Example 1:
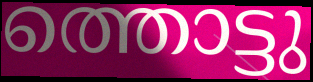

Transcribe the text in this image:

ത്തൊട്ടു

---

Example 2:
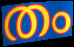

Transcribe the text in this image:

തം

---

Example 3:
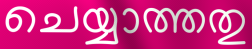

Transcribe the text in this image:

ചെയ്യാത്തതു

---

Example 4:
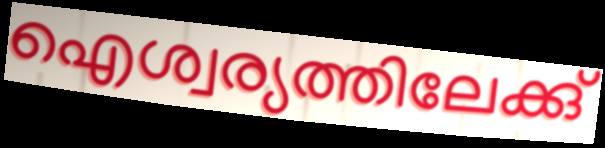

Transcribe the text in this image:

ഐശ്വര്യത്തിലേക്കു്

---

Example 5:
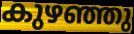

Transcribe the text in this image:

കുഴഞ്ഞു